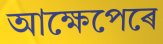
আক্ষেপেৰে